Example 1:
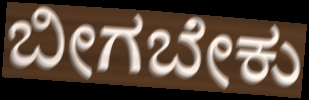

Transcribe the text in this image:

ಬೀಗಬೇಕು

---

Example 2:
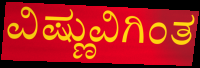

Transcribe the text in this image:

ವಿಷ್ಣುವಿಗಿಂತ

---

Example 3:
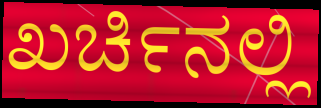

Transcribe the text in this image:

ಖರ್ಚಿನಲ್ಲಿ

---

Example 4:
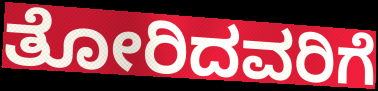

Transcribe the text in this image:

ತೋರಿದವರಿಗೆ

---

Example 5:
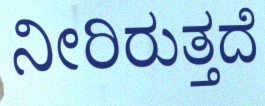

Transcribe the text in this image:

ನೀರಿರುತ್ತದೆ